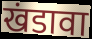
खंडावा